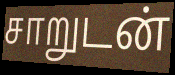
சாறுடன்